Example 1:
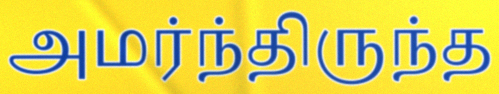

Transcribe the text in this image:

அமர்ந்திருந்த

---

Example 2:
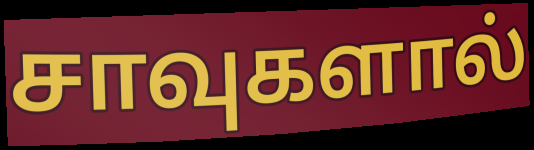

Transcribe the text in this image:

சாவுகளால்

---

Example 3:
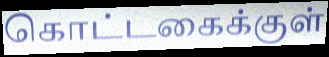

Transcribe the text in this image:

கொட்டகைக்குள்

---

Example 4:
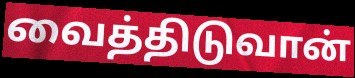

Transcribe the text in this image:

வைத்திடுவான்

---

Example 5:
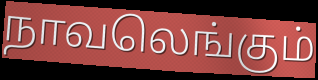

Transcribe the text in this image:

நாவலெங்கும்